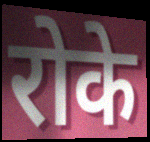
रोके